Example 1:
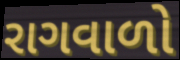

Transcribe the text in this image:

રાગવાળો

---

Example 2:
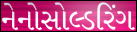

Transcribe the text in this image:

નેનોસોલ્ડરિંગ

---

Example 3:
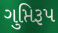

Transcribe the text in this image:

ગુપ્તિરૂપ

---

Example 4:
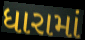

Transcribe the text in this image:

ધારામાં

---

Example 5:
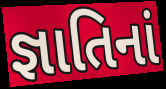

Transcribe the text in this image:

જ્ઞાતિનાં